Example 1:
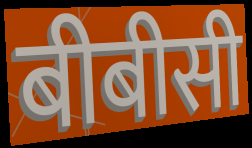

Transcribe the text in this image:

बीबीसी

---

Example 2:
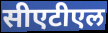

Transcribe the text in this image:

सीएटीएल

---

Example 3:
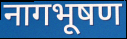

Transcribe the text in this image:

नागभूषण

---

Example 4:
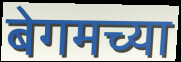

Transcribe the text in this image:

बेगमच्या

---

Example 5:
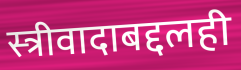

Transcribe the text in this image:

स्त्रीवादाबद्दलही